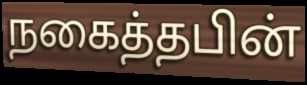
நகைத்தபின்